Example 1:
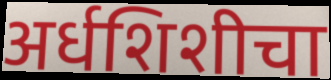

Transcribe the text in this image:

अर्धशिशीचा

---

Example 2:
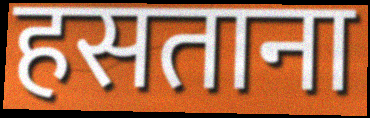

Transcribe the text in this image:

हसताना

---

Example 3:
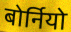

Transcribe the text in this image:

बोर्नियो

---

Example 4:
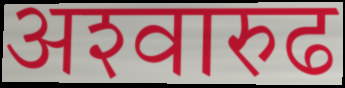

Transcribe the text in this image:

अश्वारुढ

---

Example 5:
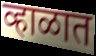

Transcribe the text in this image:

व्हाळात